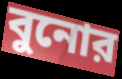
বুনোর